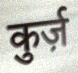
कुर्ज़